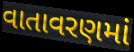
વાતાવરણમાં